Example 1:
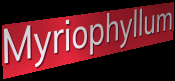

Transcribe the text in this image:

Myriophyllum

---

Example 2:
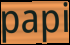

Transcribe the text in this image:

papi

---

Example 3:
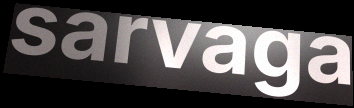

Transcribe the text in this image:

sarvaga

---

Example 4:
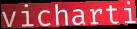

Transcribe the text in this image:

vicharti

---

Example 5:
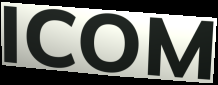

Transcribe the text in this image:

ICOM